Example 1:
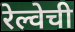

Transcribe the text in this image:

रेल्वेची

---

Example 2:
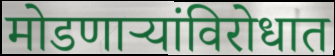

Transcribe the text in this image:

मोडणाऱ्यांविरोधात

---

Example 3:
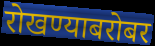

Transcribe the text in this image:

रोखण्याबरोबर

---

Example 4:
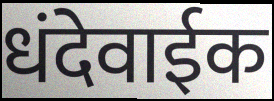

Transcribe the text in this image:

धंदेवाईक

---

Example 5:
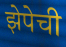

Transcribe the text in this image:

झेपेची